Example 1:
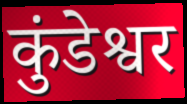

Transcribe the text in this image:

कुंडेश्वर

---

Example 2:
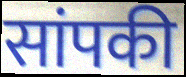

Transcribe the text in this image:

सांपकी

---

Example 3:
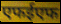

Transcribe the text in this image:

एफईएफ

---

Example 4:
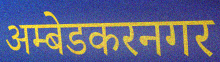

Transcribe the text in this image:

अम्बेडकरनगर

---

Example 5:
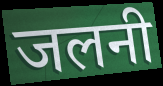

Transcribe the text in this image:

जलनी